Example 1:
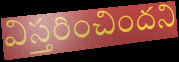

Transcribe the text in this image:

విస్తరించిందని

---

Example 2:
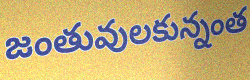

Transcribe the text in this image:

జంతువులకున్నంత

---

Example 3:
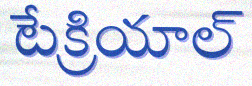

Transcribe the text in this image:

టేక్రియాల్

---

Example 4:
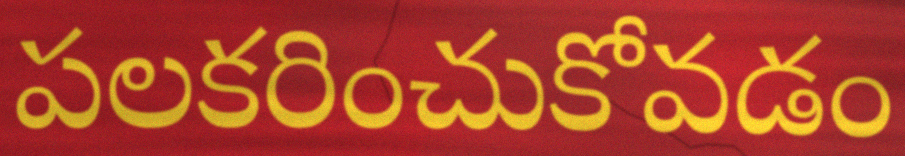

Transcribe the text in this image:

పలకరించుకోవడం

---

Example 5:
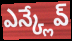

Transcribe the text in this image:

ఎన్క్లేవ్